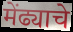
मेंढ्याचे